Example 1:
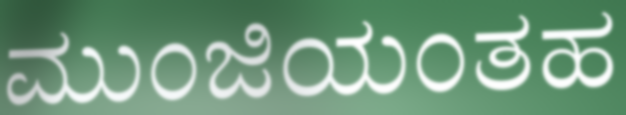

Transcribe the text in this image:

ಮುಂಜಿಯಂತಹ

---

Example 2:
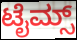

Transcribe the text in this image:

ಟೈಮ್ಸ್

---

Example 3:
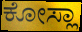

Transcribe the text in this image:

ಕೋಸ್ಲಾ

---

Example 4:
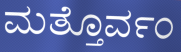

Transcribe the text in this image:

ಮತ್ತೊರ್ವಂ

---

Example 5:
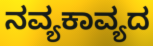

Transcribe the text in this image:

ನವ್ಯಕಾವ್ಯದ